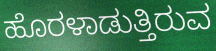
ಹೊರಳಾಡುತ್ತಿರುವ